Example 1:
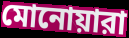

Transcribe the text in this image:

মোনোয়ারা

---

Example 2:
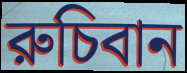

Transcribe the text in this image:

রুচিবান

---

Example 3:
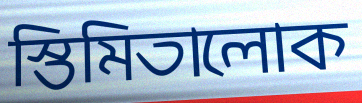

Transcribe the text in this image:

স্তিমিতালোক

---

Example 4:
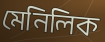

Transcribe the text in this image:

মেনিলিক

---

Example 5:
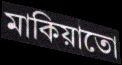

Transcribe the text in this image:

মাকিয়াতো